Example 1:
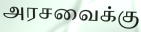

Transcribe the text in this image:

அரசவைக்கு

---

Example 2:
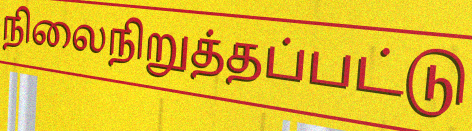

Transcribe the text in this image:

நிலைநிறுத்தப்பட்டு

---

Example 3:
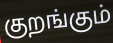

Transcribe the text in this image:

குறங்கும்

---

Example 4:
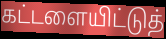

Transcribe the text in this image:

கட்டளையிட்டுத்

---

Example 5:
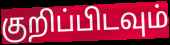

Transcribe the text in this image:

குறிப்பிடவும்